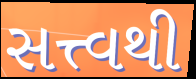
સત્ત્વથી